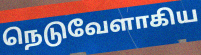
நெடுவேளாகிய